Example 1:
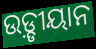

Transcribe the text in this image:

ଉଡ଼୍ଡୀୟାନ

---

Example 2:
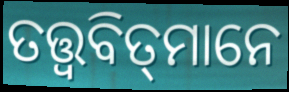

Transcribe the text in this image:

ତତ୍ତ୍ୱବିତ୍‌ମାନେ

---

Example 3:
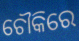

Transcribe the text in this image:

ଚୌକିରେ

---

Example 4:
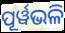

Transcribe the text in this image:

ପୂର୍ୱଭଳି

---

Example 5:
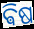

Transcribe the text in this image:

ଵିଷ